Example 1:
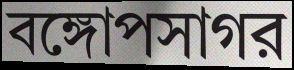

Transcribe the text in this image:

বঙ্গোপসাগর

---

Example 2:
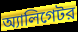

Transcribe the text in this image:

অ্যালিগেটর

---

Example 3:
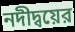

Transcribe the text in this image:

নদীদ্বয়ের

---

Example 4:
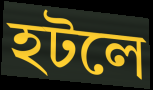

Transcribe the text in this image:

হটলে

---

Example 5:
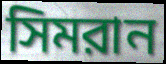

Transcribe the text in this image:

সিমরান